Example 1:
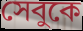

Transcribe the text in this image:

সেবুকে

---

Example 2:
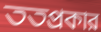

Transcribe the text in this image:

ততপ্রকার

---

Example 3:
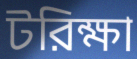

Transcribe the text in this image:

টরিক্ষা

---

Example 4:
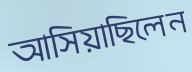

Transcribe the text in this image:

আসিয়াছিলেন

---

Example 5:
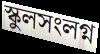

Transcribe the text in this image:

স্কুলসংলগ্ন